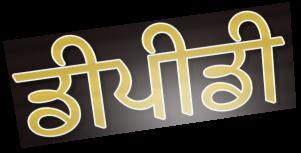
ਡੀਪੀਡੀ